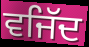
ਵਜਿੱਦ